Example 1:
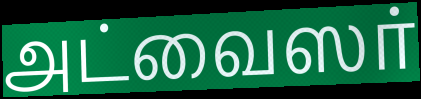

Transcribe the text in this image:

அட்வைஸர்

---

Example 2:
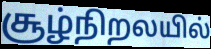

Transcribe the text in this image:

சூழ்நிறலயில்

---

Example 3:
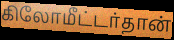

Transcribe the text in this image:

கிலோமீட்டர்தான்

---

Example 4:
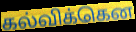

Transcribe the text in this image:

கல்விக்கென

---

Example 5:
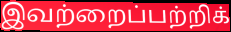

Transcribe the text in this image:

இவற்றைப்பற்றிக்